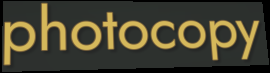
photocopy